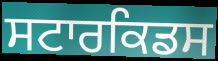
ਸਟਾਰਕਿਡਸ